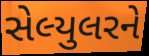
સેલ્યુલરને